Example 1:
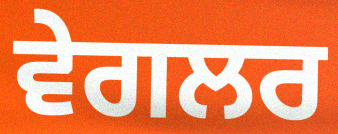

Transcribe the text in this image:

ਵੇਗਲਰ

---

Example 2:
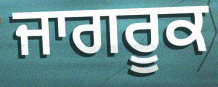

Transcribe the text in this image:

ਜਾਗਰੂਕ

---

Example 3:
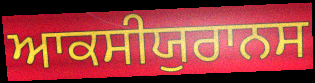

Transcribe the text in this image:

ਆਕਸੀਯੁਰਾਨਸ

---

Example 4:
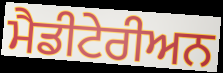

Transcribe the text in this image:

ਮੈਡੀਟੇਰੀਅਨ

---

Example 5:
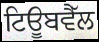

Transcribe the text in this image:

ਟਿਊਬਵੈੱਲ